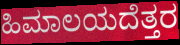
ಹಿಮಾಲಯದೆತ್ತರ